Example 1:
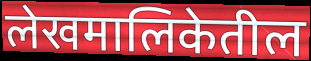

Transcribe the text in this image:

लेखमालिकेतील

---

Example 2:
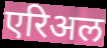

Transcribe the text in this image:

एरिअल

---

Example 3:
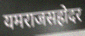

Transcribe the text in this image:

यमराजसहोदर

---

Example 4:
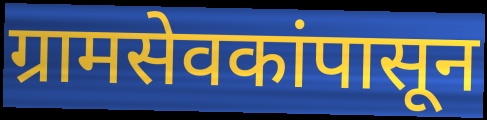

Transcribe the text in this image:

ग्रामसेवकांपासून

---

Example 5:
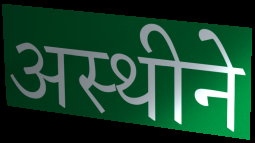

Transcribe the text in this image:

अस्थीने